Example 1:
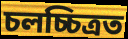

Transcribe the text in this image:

চলচ্চিত্ৰত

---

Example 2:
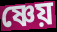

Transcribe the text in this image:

ষ্ণেয়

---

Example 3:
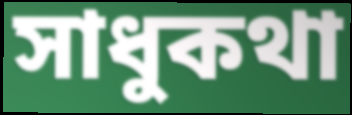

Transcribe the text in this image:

সাধুকথা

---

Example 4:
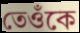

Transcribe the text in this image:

তেওঁকে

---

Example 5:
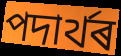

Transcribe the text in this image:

পদাৰ্থৰ